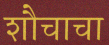
शौचाचा